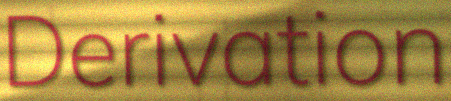
Derivation